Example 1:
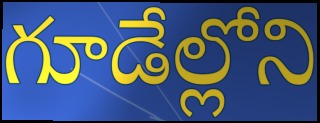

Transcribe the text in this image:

గూడేల్లోని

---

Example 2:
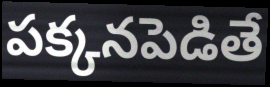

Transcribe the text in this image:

పక్కనపెడితే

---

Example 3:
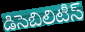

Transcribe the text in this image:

డిసెబిలిటీస్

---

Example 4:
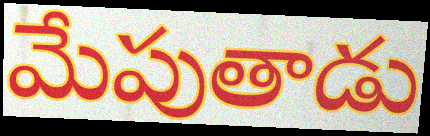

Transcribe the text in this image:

మేపుతాడు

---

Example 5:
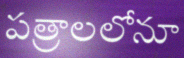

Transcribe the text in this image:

పత్రాలలోనూ